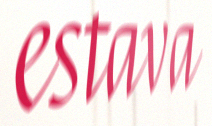
estava